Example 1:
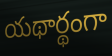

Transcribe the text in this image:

యథార్థంగా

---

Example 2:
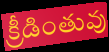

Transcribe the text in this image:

క్రీడింతువు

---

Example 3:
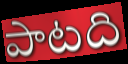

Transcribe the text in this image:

పాటది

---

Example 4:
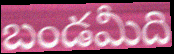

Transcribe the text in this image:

బండమీది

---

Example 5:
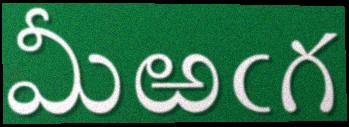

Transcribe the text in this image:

మీఱఁగ